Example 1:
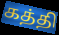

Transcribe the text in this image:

கத்தி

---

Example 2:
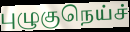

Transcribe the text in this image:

புழுகுநெய்ச்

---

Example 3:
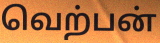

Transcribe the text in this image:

வெற்பன்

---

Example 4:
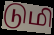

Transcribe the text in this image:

டுமி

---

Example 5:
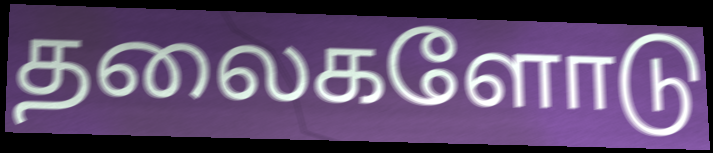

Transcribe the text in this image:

தலைகளோடு